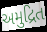
અમુદ્રિત